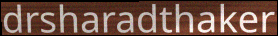
drsharadthaker